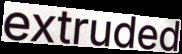
extruded